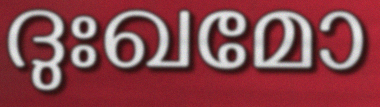
ദുഃഖമോ